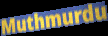
Muthmurdu